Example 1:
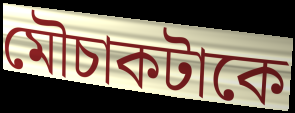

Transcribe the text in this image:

মৌচাকটাকে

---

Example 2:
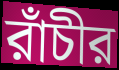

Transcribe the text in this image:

রাঁচীর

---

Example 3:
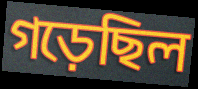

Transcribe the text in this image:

গড়েছিল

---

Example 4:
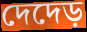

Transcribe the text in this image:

দেদেড়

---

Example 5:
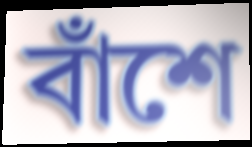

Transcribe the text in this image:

বাঁশে